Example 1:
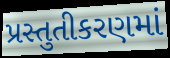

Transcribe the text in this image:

પ્રસ્તુતીકરણમાં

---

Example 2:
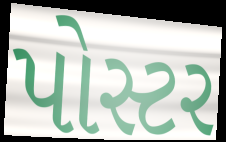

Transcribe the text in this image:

પોસ્ટર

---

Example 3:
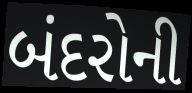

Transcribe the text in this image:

બંદરોની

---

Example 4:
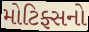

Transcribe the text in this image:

મોટિફ્સનો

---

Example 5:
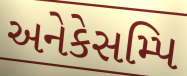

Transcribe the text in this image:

અનેકેસમ્પિ